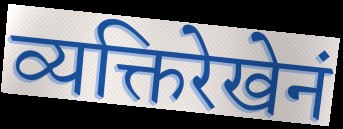
व्यक्तिरेखेनं